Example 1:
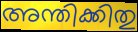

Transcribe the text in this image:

അന്തിക്കിതു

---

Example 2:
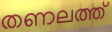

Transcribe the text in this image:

തണലത്ത്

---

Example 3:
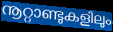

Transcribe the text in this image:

നൂറ്റാണ്ടുകളിലും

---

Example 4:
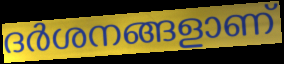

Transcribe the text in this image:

ദർശനങ്ങളാണ്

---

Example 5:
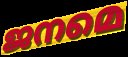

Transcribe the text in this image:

ജനമെ